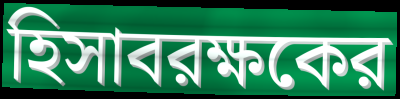
হিসাবরক্ষকের